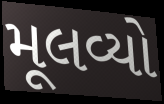
મૂલવ્યો